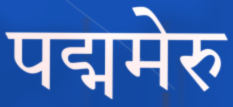
पद्ममेरु